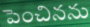
పెంచినను